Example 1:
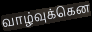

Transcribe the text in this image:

வாழ்வுக்கென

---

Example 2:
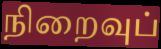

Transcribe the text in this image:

நிறைவுப்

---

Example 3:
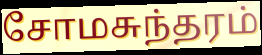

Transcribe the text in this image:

சோமசுந்தரம்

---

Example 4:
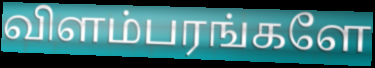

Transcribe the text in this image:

விளம்பரங்களே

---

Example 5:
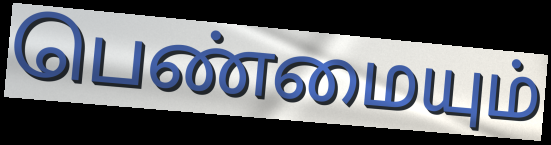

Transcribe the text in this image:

பெண்மையும்